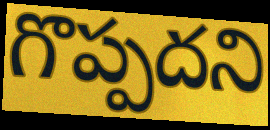
గొప్పదని